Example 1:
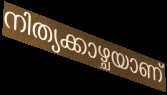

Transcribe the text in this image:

നിത്യക്കാഴ്ചയാണ്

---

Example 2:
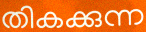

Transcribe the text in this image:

തികക്കുന്ന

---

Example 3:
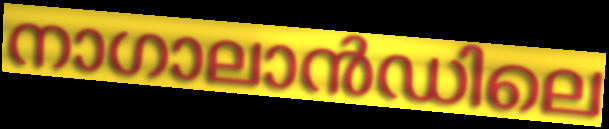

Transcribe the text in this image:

നാഗാലാൻഡിലെ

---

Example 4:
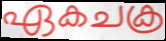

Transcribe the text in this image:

ഏകചക്ര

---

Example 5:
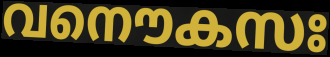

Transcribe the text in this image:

വനൌകസഃ